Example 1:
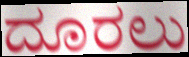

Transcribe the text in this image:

ದೂರಲು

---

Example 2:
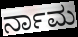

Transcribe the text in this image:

ರ್ನಾಮ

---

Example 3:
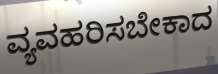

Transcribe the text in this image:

ವ್ಯವಹರಿಸಬೇಕಾದ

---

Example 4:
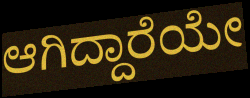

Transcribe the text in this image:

ಆಗಿದ್ದಾರೆಯೇ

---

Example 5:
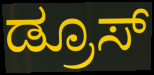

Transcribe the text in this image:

ಡ್ರೂಸ್